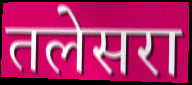
तलेसरा